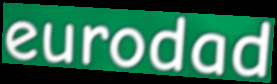
eurodad